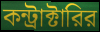
কন্ট্রাক্টারির